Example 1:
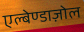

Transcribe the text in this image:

एल्बेण्डाज़ोल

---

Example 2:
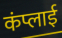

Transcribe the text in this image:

कंप्लाई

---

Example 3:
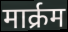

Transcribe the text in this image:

मार्क्रम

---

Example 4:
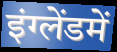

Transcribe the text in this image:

इंग्लेंडमें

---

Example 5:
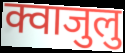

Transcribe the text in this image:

क्वाजुलु